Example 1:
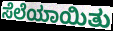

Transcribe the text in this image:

ಸೆಲೆಯಾಯಿತು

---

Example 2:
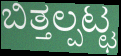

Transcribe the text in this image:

ಬಿತ್ತಲ್ಪಟ್ಟ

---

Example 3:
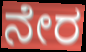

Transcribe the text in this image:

ನೇರ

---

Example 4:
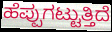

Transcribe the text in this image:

ಹೆಪ್ಪುಗಟ್ಟುತ್ತಿದೆ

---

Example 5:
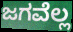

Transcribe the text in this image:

ಜಗವೆಲ್ಲ